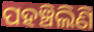
ପହଞ୍ଚିଲିଣି